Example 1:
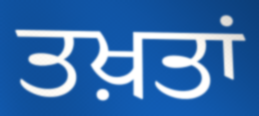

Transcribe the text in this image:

ਤਖ਼ਤਾਂ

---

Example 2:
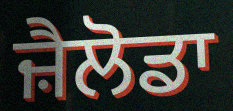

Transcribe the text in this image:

ਜ਼ੈਲੋਡਾ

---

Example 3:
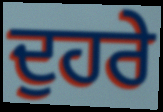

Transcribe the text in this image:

ਦੁਹਰੇ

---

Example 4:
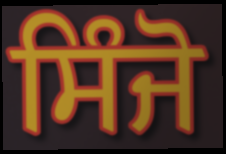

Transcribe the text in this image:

ਸਿੰਜੋ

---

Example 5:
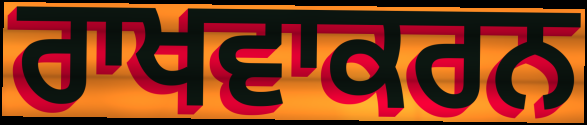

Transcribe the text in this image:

ਰਾਖਵਾਕਰਨ